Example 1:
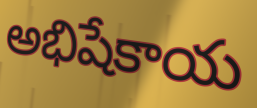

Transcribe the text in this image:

అభిషేకాయ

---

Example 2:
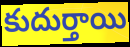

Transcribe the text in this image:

కుదుర్తాయి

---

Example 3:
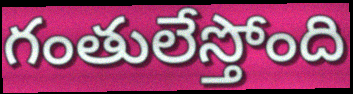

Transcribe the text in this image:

గంతులేస్తోంది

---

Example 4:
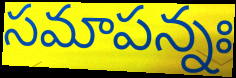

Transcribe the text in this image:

సమాపన్నః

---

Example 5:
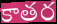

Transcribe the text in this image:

కాతర